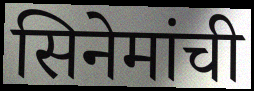
सिनेमांची